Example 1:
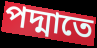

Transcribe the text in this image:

পদ্মাতে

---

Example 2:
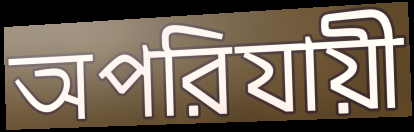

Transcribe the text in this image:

অপরিযায়ী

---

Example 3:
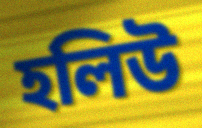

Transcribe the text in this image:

হলিউ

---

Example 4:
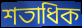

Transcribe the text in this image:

শতাধিক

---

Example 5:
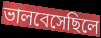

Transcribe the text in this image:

ভালবেসেছিলে